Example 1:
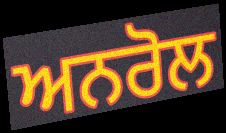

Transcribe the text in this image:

ਅਨਰੋਲ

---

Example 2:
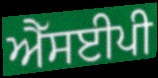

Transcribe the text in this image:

ਐੱਸਈਪੀ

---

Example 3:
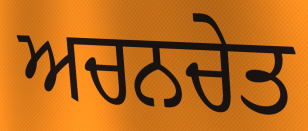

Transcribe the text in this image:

ਅਚਨਚੇਤ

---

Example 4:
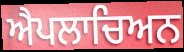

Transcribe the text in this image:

ਐਪਲਾਚਿਅਨ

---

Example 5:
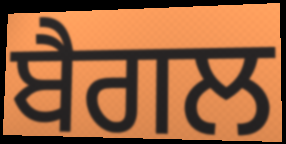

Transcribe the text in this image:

ਬੈਗਲ